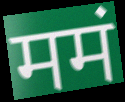
ममं